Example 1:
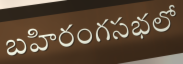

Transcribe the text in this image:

బహిరంగసభలో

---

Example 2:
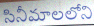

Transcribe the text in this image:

సినీమాలలోని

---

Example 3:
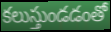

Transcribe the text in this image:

కలుస్తుండడంతో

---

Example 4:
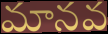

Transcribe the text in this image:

మానవ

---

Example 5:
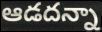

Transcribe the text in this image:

ఆడదన్నా